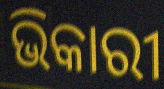
ଭିକାରୀ